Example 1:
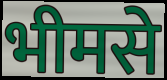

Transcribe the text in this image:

भीमसे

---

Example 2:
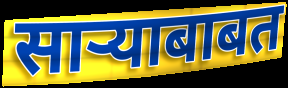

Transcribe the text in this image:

साऱ्याबाबत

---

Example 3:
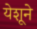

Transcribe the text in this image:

येशूने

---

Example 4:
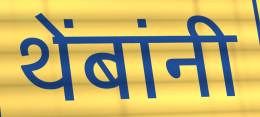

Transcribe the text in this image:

थेंबांनी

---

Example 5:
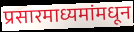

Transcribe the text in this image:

प्रसारमाध्यमांमधून